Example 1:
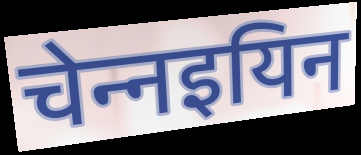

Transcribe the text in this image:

चेन्नइयिन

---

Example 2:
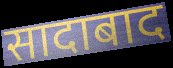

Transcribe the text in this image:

सादाबाद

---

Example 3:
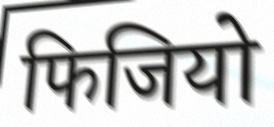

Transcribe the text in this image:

फिजियो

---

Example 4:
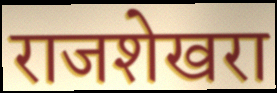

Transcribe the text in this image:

राजशेखरा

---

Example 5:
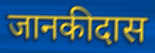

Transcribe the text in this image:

जानकीदास